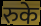
रुके